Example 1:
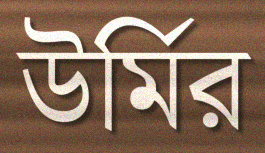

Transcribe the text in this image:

উর্মির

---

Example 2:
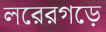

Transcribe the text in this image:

লরেরগড়ে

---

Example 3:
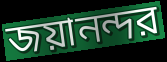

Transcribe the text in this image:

জয়ানন্দর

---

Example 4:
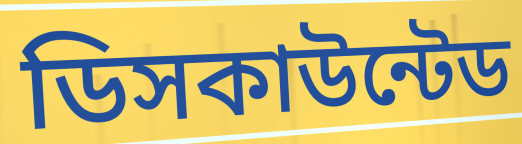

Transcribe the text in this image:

ডিসকাউন্টেড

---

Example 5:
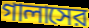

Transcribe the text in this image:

গালাসের